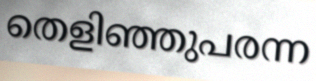
തെളിഞ്ഞുപരന്ന